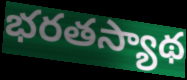
భరతస్యాథ